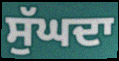
ਸੁੱਘਦਾ